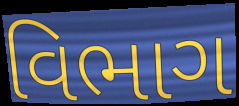
વિભાગ